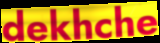
dekhche